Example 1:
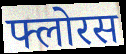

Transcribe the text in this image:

फ्लोरस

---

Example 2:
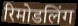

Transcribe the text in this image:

रिमोडलिंग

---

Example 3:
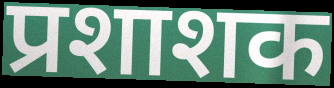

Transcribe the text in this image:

प्रशाशक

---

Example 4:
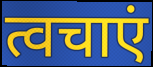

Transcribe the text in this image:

त्वचाएं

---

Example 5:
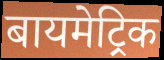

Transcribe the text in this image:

बायमेट्रिक